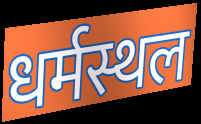
धर्मस्थल